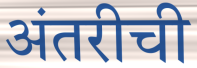
अंतरीची